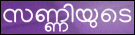
സണ്ണിയുടെ